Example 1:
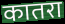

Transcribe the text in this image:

कातरा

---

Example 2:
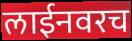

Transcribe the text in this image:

लाईनवरच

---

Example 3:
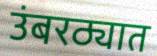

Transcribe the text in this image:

उंबरठ्यात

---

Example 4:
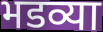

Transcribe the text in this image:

भडव्या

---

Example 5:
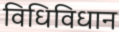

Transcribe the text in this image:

विधिविधान